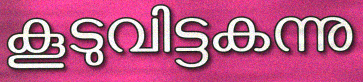
കൂടുവിട്ടകന്നു